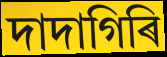
দাদাগিৰি